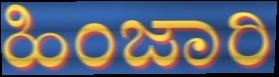
ಹಿಂಜಾರಿ